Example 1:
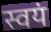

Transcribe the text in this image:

स्वयं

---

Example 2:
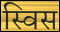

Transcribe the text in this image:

स्विस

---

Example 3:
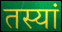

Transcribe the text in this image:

तस्यां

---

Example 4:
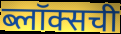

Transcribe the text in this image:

ब्लॉक्सची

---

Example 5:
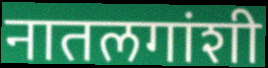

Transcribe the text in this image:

नातलगांशी